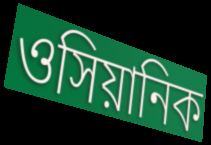
ওসিয়ানিক